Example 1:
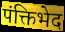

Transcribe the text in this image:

पंक्तिभेद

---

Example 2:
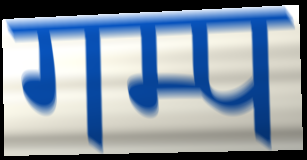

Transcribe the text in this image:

गम्प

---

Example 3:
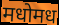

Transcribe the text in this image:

मधोमध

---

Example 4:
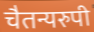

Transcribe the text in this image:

चैतन्यरुपी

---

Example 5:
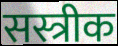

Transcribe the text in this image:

सस्त्रीक